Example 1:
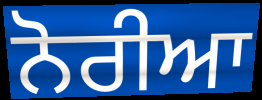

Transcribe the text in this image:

ਨੋਰੀਆ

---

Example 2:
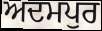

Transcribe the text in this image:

ਅਦਮਪੁਰ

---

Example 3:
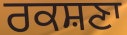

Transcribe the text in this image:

ਰਕਸ਼ਣਾ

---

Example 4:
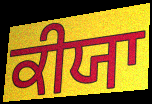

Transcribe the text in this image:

ਕੀਯਾ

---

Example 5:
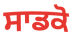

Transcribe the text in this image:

ਸਾਡਕੋ